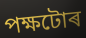
পক্ষটোৰ